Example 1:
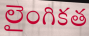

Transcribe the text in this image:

లైంగికత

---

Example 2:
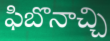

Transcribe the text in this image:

ఫిబొనాచ్చి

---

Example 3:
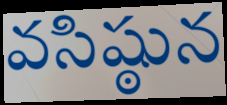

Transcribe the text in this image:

వసిష్ఠున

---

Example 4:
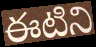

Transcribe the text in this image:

ఈటిని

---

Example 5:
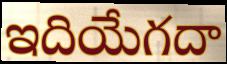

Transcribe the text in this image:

ఇదియేగదా